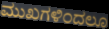
ಮುಖಗಳಿಂದಲೂ